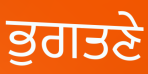
ਭੁਗਤਣੇ